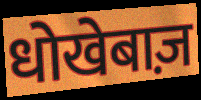
धोखेबाज़